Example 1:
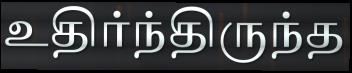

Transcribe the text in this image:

உதிர்ந்திருந்த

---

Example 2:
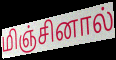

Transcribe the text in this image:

மிஞ்சினால்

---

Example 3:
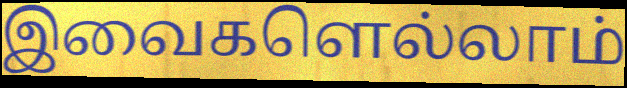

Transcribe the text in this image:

இவைகளெல்லாம்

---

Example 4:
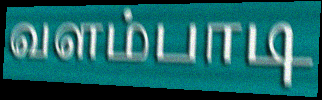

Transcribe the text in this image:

வளம்பாடி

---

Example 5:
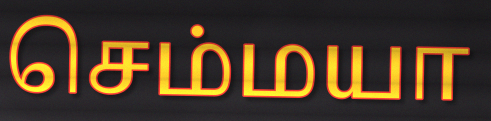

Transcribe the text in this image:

செம்மயா